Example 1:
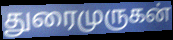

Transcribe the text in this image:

துரைமுருகன்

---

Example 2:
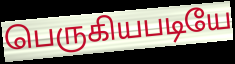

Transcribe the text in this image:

பெருகியபடியே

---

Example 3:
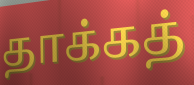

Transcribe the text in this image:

தாக்கத்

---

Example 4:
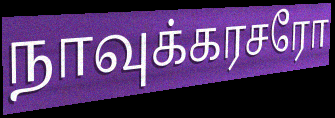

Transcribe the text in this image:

நாவுக்கரசரோ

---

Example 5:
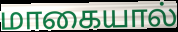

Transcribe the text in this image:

மாகையால்